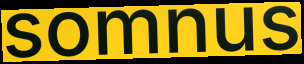
somnus